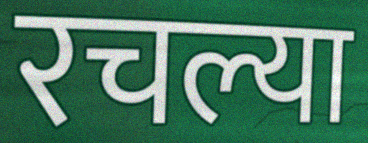
रचल्या